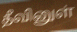
தீவினுள்